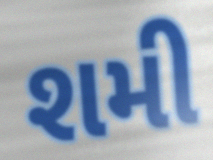
શમી